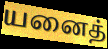
யனைத்